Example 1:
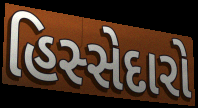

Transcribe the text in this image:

હિસ્સેદારો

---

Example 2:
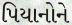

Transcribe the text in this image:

પિયાનોને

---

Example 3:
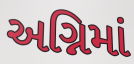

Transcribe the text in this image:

અગ્નિમાં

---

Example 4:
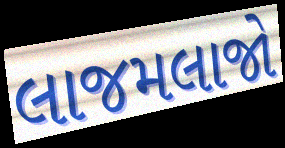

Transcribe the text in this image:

લાજમલાજો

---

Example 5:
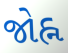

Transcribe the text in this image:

જોહ્ન